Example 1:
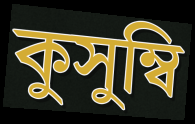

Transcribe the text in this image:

কুসুম্বি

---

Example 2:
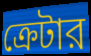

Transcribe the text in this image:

ক্রেটার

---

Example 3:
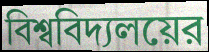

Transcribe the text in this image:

বিশ্ববিদ্যলয়ের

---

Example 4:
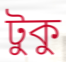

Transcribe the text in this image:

টুকু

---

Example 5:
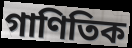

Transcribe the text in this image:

গাণিতিক